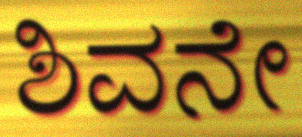
ಶಿವನೇ